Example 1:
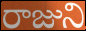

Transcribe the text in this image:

రాజుని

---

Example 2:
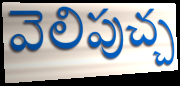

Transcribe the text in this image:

వెలిపుచ్చ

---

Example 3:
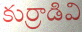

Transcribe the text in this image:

కుర్రాడివి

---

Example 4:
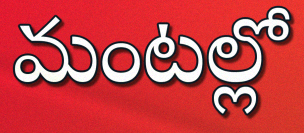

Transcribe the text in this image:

మంటల్లో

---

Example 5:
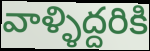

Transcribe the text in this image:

వాళ్ళిద్దరికి